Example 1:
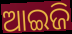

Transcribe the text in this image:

ଆଇଜି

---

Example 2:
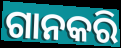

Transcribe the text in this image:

ଗାନକରି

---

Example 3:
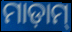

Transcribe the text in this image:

ମାଡ଼ାମ୍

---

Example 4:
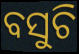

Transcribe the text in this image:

ବସୁଚି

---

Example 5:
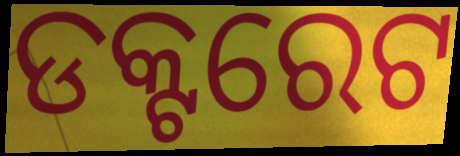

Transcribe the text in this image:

ଡକ୍ଟରେଟ